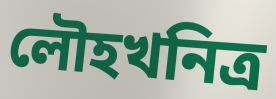
লৌহখনিত্র